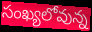
సంఖ్యలోవున్న